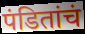
पंडितांचं